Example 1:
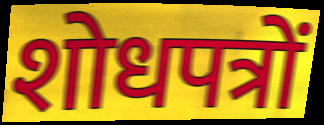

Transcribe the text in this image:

शोधपत्रों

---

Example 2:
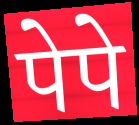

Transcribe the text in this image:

पेपे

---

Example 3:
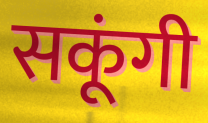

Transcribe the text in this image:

सकूंगी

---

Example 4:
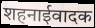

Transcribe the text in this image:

शहनाईवादक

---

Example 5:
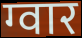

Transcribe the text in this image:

ग्वार